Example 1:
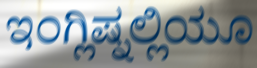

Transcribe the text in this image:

ಇಂಗ್ಲಿಷ್ನಲ್ಲಿಯೂ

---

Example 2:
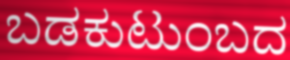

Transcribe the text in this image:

ಬಡಕುಟುಂಬದ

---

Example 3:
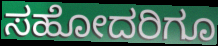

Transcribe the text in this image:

ಸಹೋದರಿಗೂ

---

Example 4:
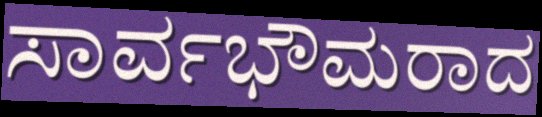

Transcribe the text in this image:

ಸಾರ್ವಭೌಮರಾದ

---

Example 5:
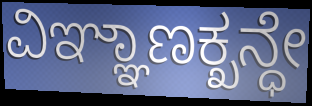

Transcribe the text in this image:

ವಿಞ್ಞಾಣಕ್ಖನ್ಧೇ